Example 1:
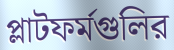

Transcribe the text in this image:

প্লাটফর্মগুলির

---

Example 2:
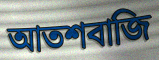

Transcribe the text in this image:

আতশবাজি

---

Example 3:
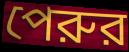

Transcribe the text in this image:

পেরুর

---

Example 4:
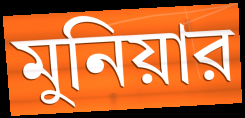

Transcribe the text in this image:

মুনিয়ার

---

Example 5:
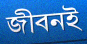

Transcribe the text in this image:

জীবনই